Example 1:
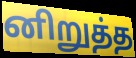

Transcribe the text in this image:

னிறுத்த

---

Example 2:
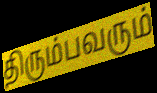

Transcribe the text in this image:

திரும்பவரும்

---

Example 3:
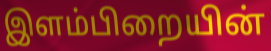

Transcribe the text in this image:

இளம்பிறையின்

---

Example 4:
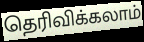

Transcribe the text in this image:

தெரிவிக்கலாம்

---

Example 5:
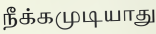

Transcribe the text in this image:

நீக்கமுடியாது